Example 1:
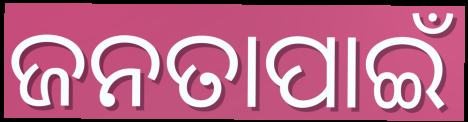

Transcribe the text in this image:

ଜନତାପାଇଁ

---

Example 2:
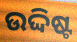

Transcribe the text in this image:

ଉଦ୍ଦିଷ୍ଟ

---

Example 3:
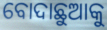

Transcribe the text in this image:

ବୋଦାଛୁଆକୁ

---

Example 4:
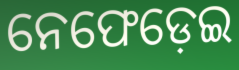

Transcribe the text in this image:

ନେଫେଡ଼େଇ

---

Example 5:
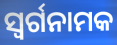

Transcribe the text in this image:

ସ୍ଵର୍ଗନାମକ